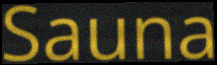
Sauna